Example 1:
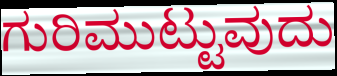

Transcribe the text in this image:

ಗುರಿಮುಟ್ಟುವುದು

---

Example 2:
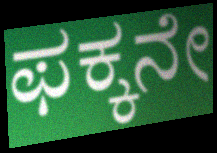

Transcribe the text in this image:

ಫಕ್ಕನೇ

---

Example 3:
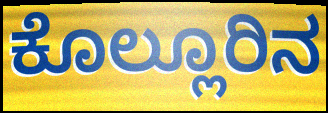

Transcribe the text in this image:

ಕೊಲ್ಲೂರಿನ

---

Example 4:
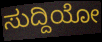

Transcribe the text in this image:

ಸುದ್ದಿಯೋ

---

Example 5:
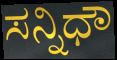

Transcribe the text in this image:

ಸನ್ನಿಧೌ